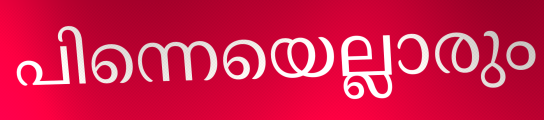
പിന്നെയെല്ലാരും